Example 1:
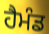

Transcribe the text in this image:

ਹੈਮੰਡ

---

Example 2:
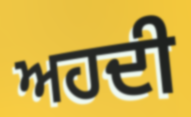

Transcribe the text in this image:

ਅਹਦੀ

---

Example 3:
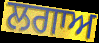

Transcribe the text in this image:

ਲਗਾਅ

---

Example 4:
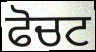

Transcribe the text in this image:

ਫੋਚਟ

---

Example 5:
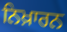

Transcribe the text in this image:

ਨਿਖ਼ਾਰਨ